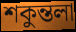
শকুন্তলা